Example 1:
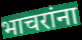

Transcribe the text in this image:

भाचरांना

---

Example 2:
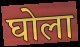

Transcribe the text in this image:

घोला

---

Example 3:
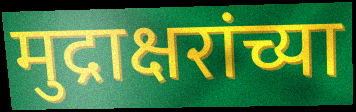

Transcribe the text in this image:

मुद्राक्षरांच्या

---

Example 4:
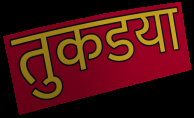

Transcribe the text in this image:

तुकडया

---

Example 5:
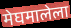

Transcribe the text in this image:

मेघमालेला